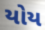
યોય